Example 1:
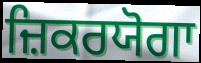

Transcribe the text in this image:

ਜ਼ਿਕਰਯੋਗਾ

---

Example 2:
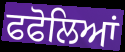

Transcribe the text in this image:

ਫਫੋਲਿਆਂ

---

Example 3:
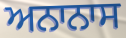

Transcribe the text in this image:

ਅਨਾਨਾਸ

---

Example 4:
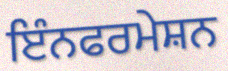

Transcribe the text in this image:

ਇੰਨਫਰਮੇਸ਼ਨ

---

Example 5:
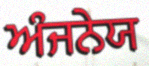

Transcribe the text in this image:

ਅੰਜਨੇਯ